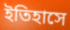
ইতিহাসে